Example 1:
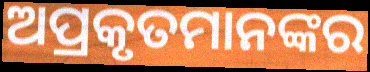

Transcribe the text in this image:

ଅପ୍ରକୃତମାନଙ୍କର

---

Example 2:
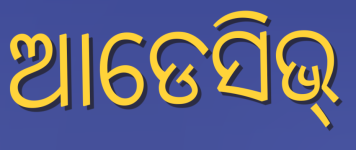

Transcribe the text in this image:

ଆଡେସିଭ୍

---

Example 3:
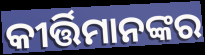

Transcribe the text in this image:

କୀର୍ତ୍ତିମାନଙ୍କର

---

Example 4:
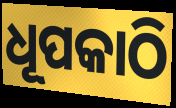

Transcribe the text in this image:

ଧୂପକାଠି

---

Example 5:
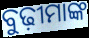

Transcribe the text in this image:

ବୁଢ଼ୀମାଙ୍କ